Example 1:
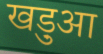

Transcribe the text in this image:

खड़ुआ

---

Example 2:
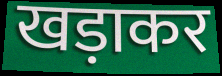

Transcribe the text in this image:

खड़ाकर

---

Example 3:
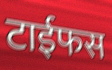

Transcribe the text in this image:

टाईफस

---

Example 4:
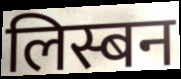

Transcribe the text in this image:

लिस्बन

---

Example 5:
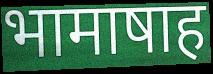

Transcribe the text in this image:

भामाषाह